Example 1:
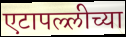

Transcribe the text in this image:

एटापल्लीच्या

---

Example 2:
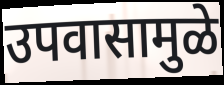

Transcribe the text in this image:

उपवासामुळे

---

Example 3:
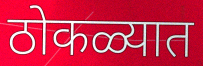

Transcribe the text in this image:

ठोकळ्यात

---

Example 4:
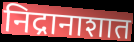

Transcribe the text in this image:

निद्रानाशात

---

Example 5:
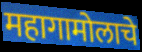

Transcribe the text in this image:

महागामोलाचे